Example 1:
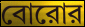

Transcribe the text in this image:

বোরোর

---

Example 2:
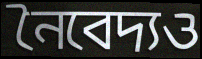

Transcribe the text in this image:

নৈবেদ্যও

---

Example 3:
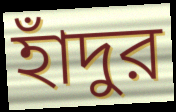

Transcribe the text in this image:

হাঁদুর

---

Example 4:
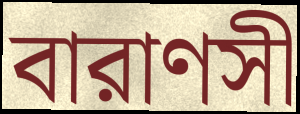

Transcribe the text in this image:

বারাণসী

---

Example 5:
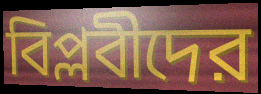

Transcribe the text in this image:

বিপ্লবীদের